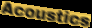
Acoustics